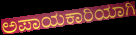
ಅಪಾಯಕಾರಿಯಾಗಿ